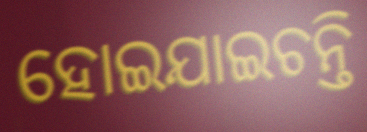
ହୋଇଯାଇଚନ୍ତି